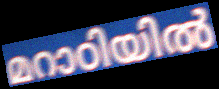
മറാഠിയിൽ